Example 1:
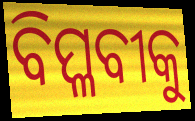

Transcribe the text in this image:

ବିପ୍ଳବୀକୁ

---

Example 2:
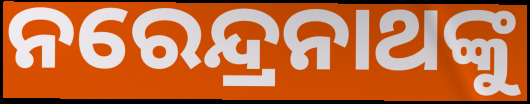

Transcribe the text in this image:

ନରେନ୍ଦ୍ରନାଥଙ୍କୁ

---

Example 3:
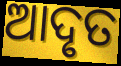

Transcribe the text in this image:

ଆଦୃତ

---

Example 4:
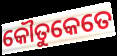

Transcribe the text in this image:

କୌତୁକେତେ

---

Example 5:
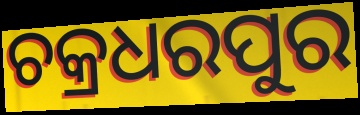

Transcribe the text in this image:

ଚକ୍ରଧରପୁର